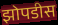
झोपडीस